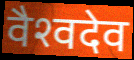
वैश्वदेव